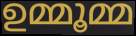
ഉമ്മൂമ്മ